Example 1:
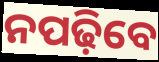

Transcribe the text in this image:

ନପଢ଼ିବେ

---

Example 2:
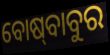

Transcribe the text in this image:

ବୋଷ୍‍ବାବୁର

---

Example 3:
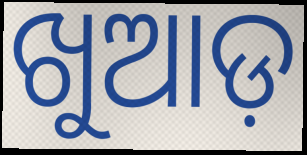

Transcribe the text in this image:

ଖୁଆଡ଼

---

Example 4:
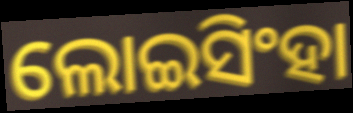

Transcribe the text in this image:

ଲୋଇସିଂହା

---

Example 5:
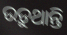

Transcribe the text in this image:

ଉଡ଼ୁଥାନ୍ତି